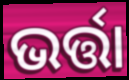
ଭର୍ତ୍ତା